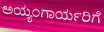
ಅಯ್ಯಂಗಾರ್ಯರಿಗೆ